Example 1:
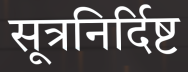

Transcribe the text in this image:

सूत्रनिर्दिष्ट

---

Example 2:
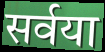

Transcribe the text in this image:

सर्वया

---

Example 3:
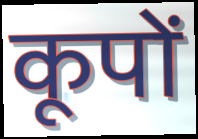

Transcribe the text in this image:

कूपों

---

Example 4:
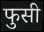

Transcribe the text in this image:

फुसी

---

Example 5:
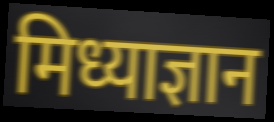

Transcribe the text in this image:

मिध्याज्ञान